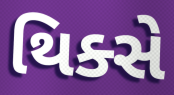
થિક્સે